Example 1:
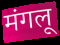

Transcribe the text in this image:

मंगलू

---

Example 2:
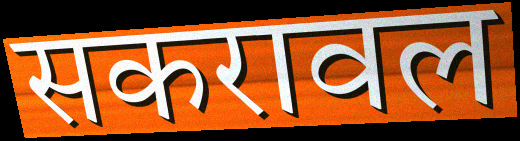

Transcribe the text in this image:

सकरावल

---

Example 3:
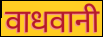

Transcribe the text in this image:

वाधवानी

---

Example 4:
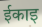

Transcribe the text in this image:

ईकाइ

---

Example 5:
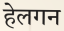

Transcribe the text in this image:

हेलगन